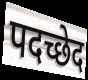
पदच्छेद